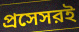
প্রসেসরই